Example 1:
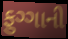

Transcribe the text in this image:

ફુગ્ગાની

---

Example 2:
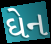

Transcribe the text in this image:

ઘેન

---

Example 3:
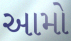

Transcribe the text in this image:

આમો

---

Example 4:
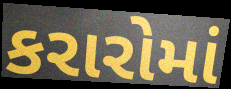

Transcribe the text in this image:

કરારોમાં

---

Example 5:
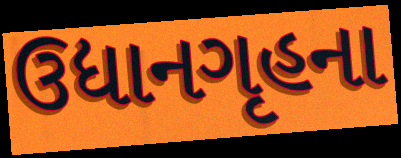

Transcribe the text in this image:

ઉદ્યાનગૃહના